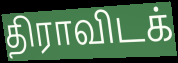
திராவிடக்